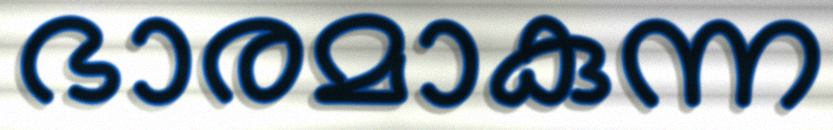
ഭാരമാകുന്ന